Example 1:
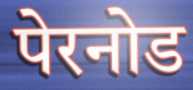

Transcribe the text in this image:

पेरनोड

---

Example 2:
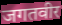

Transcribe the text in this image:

जगतवीर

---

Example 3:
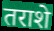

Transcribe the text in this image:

तराशे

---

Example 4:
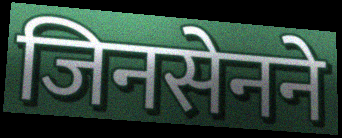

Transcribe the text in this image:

जिनसेनने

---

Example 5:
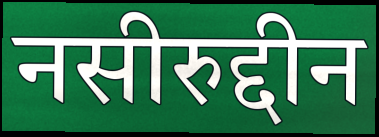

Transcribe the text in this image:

नसीरुद्दीन